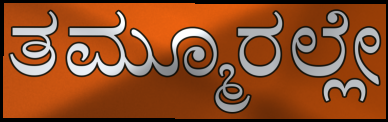
ತಮ್ಮೂರಲ್ಲೇ